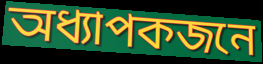
অধ্যাপকজনে